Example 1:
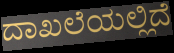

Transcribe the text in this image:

ದಾಖಲೆಯಲ್ಲಿದೆ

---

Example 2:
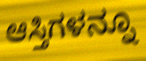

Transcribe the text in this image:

ಆಸ್ತಿಗಳನ್ನೂ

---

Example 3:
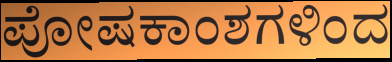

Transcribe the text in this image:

ಪೋಷಕಾಂಶಗಳಿಂದ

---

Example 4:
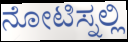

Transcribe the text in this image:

ನೋಟಿಸ್ನಲ್ಲಿ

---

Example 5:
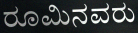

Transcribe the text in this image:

ರೂಮಿನವರು